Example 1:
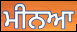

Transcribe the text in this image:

ਮੀਨਆ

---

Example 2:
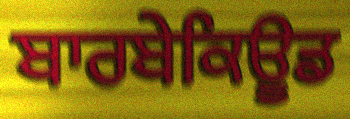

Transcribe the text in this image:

ਬਾਰਬੇਕਿਊਡ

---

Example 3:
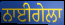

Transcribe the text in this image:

ਨਾਈਗੇਲਾ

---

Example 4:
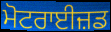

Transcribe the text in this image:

ਮੋਟਰਾਈਜ਼ਡ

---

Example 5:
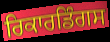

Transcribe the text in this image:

ਰਿਕਾਰਡਿੰਗਸ